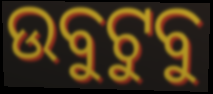
ଉବୁଟୁବୁ